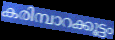
കരിമ്പാറക്കൂട്ടം